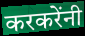
करकरेंनी